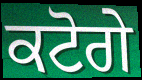
ਕਟੋਗੇ